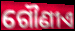
ଗୌଣୀଏ